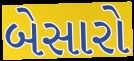
બેસારો